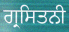
ਗ੍ਰਸਿਤਨੀ